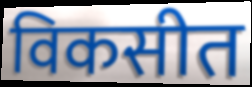
विकसीत